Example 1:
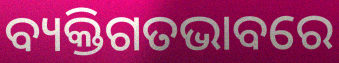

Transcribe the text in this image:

ବ୍ୟକ୍ତିଗତଭାବରେ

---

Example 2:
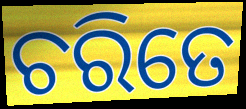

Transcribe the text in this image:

ଚରିତେ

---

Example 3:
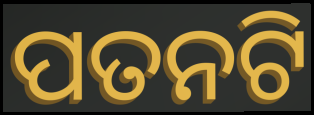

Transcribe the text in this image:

ପତନଟି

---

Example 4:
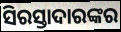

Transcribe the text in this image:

ସିରସ୍ତାଦାରଙ୍କର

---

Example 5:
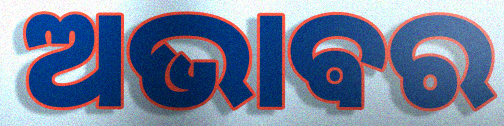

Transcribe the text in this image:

ଅଭାଵର